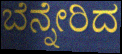
ಬೆನ್ನೇರಿದ